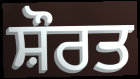
ਸ਼ੌਰਤ